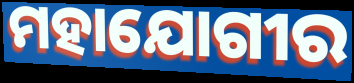
ମହାଯୋଗୀର